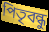
পিতৃবন্ধু